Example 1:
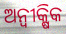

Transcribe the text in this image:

ଅନ୍ୱୀକ୍ଷିକ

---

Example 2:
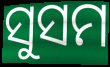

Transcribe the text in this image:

ସୁସମ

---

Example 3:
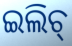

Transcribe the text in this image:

ଇଲିଚ୍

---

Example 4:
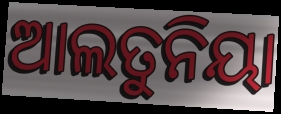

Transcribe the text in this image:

ଆଲତୁନିୟା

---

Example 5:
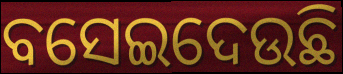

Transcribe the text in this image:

ବସେଇଦେଉଛି